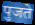
पुजते